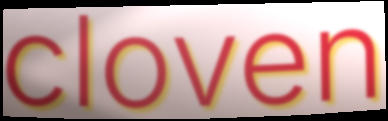
cloven